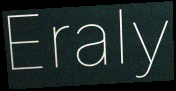
Eraly